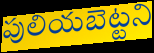
పులియబెట్టని